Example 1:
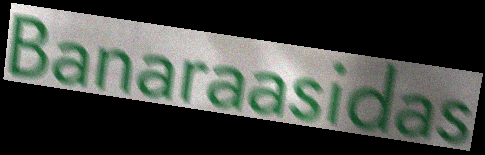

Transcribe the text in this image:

Banaraasidas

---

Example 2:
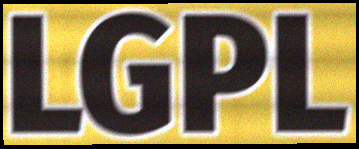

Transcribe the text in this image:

LGPL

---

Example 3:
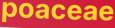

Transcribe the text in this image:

poaceae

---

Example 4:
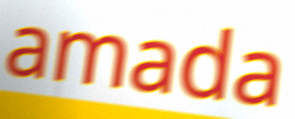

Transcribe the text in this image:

amada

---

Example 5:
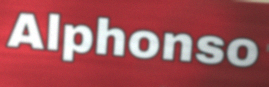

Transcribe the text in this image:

Alphonso